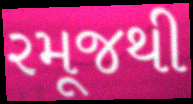
રમૂજથી